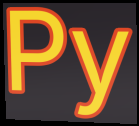
Py